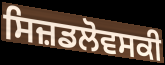
ਸਿਜ਼ਡਲੋਵਸਕੀ